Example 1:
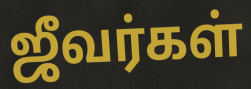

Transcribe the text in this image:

ஜீவர்கள்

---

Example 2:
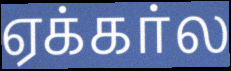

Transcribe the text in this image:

ஏக்கர்ல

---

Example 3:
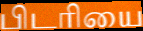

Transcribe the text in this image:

பிடரியை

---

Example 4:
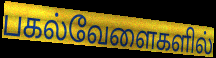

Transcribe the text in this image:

பகல்வேளைகளில்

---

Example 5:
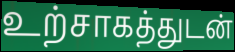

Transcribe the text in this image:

உற்சாகத்துடன்